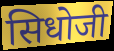
सिधोजी